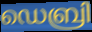
ഡെബ്രി